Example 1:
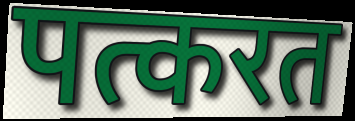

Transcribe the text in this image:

पत्करत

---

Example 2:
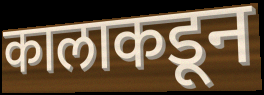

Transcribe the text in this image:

कालाकडून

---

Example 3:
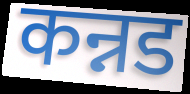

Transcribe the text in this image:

कन्नड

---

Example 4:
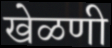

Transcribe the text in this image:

खेळणी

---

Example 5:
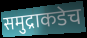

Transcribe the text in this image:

समुद्राकडेच